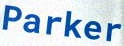
Parker